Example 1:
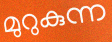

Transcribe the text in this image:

മുറുകുന്ന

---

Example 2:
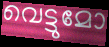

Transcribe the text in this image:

വെട്ടുമോ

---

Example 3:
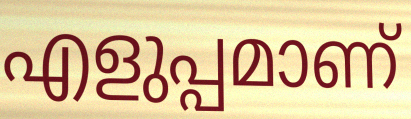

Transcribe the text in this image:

എളുപ്പമാണ്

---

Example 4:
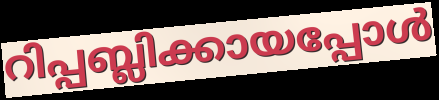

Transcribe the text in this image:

റിപ്പബ്ലിക്കായപ്പോൾ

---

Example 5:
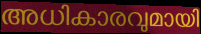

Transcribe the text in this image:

അധികാരവുമായി